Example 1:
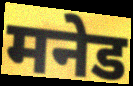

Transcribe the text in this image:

मनेड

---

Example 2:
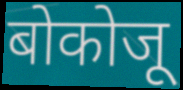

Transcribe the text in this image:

बोकोजू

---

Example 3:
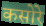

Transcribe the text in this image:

कसोरे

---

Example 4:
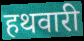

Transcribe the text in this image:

हथवारी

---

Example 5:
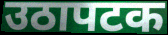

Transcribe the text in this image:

उठापटक